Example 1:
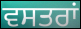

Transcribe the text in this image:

ਵਸਤਰਾਂ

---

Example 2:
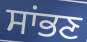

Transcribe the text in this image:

ਸਾਂਭਣ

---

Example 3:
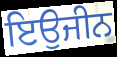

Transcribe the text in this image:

ਇਉਜੀਨ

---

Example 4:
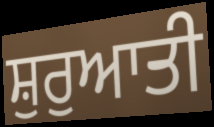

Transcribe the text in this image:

ਸ਼ੁਰੁਆਤੀ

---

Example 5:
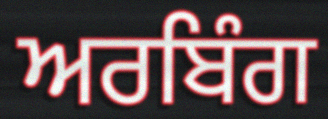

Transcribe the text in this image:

ਅਰਬਿੰਗ